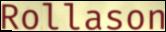
Rollason